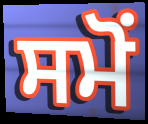
ਸਮੋਂ